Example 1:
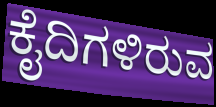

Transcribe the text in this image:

ಕೈದಿಗಳಿರುವ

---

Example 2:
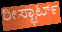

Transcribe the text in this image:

ರೀಸ್ಟಾರ್ಟ್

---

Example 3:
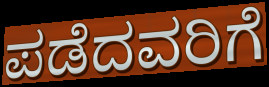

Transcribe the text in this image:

ಪಡೆದವರಿಗೆ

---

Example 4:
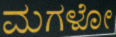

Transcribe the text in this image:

ಮಗಳೋ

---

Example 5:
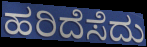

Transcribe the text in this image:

ಹರಿದೆಸೆದು